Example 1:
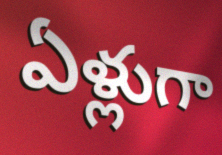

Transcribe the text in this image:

ఏళ్లుగా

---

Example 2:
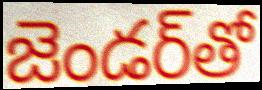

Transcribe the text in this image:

జెండర్‌తో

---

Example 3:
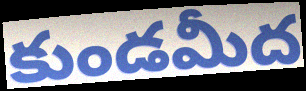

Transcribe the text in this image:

కుండమీద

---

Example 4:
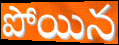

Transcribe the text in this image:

పోయిన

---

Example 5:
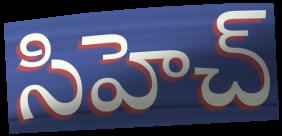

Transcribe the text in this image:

సిహెచ్